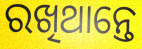
ରଖିଥାନ୍ତେ